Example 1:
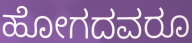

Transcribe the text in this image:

ಹೋಗದವರೂ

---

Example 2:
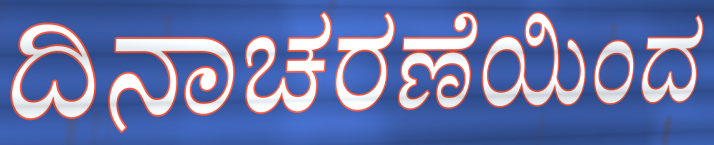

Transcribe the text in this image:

ದಿನಾಚರಣೆಯಿಂದ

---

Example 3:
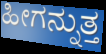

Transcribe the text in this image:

ಹೀಗನ್ನುತ್ತ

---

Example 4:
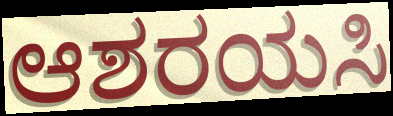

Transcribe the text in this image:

ಆಶರಯಸಿ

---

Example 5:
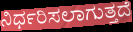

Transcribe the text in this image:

ನಿರ್ಧರಿಸಲಾಗುತ್ತದೆ